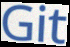
Git